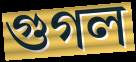
গুগল